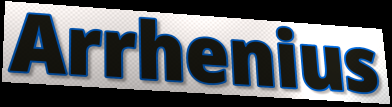
Arrhenius